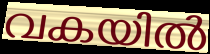
വകയിൽ